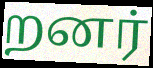
றனர்